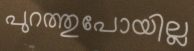
പുറത്തുപോയില്ല